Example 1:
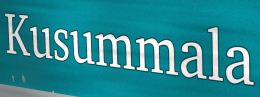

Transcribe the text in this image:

Kusummala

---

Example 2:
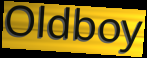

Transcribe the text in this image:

Oldboy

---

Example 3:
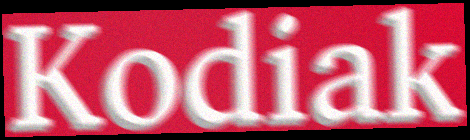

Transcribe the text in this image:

Kodiak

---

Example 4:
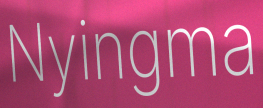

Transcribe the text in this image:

Nyingma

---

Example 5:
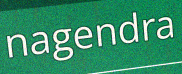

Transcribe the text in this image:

nagendra